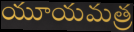
యూయమత్ర